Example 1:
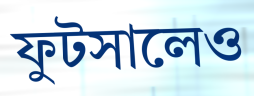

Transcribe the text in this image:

ফুটসালেও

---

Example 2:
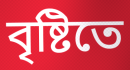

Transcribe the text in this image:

বৃষ্টিতে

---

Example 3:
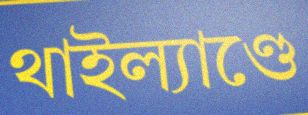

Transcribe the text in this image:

থাইল্যাণ্ডে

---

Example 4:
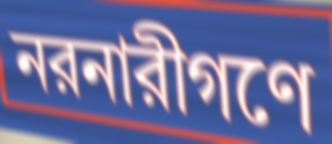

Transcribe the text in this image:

নরনারীগণে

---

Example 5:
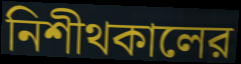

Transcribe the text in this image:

নিশীথকালের